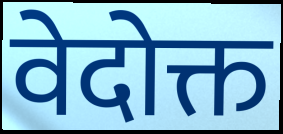
वेदोक्त